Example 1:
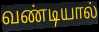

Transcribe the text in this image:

வண்டியால்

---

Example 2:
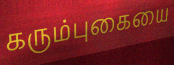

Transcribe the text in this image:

கரும்புகையை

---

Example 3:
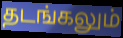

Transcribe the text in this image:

தடங்கலும்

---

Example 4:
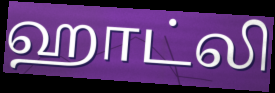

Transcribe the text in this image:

ஹாட்லி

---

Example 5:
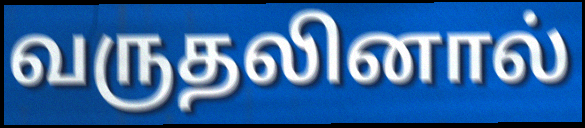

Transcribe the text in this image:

வருதலினால்